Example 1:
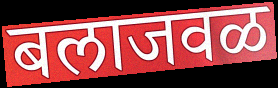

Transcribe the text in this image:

बलाजवळ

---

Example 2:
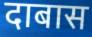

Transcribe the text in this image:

दाबास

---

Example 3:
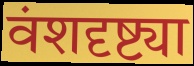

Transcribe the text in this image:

वंशदृष्ट्या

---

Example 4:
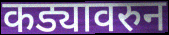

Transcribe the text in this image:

कड्यावरुन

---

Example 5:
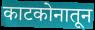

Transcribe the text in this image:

काटकोनातून